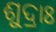
ଶୁଦ୍ରାଃ